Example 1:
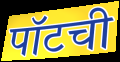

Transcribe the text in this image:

पॉटची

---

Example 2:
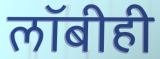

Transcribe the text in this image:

लॉबीही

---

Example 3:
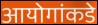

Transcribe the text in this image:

आयोगांकडे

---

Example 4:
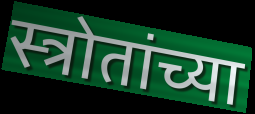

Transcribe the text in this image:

स्त्रोतांच्या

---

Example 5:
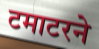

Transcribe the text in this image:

टमाटरने